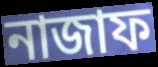
নাজাফ